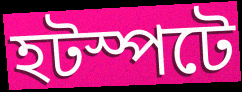
হটস্পটে